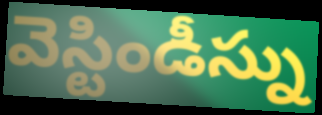
వెస్టిండీస్ను